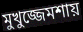
মুখুজ্জেমশায়